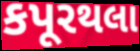
કપૂરથલા